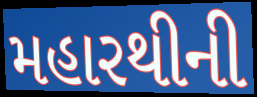
મહારથીની